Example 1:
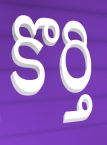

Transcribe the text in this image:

కొర్తి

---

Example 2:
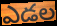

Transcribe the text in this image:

ఎడల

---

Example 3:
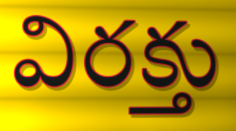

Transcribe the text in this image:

విరక్తు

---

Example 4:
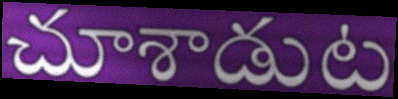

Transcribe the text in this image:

చూశాడుట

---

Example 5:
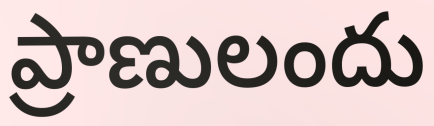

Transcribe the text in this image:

ప్రాణులందు